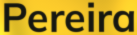
Pereira